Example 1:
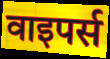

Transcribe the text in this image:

वाइपर्स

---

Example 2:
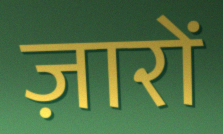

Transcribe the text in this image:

ज़ारों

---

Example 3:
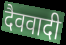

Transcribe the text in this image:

दैववादी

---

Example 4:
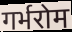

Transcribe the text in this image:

गर्भरोम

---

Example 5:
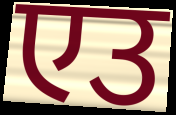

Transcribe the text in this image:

एउ